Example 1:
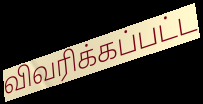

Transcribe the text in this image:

விவரிக்கப்பட்ட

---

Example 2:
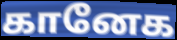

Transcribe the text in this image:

கானேக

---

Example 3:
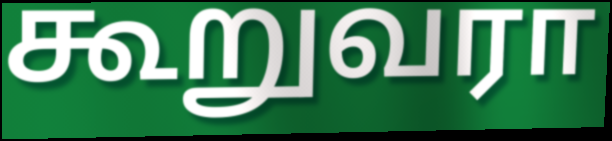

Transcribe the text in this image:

கூறுவரா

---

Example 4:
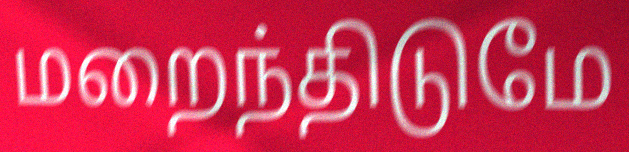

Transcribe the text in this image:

மறைந்திடுமே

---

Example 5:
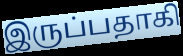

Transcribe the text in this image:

இருப்பதாகி